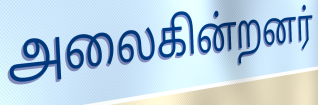
அலைகின்றனர்